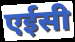
एईसी